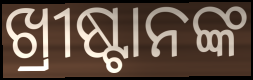
ଖ୍ରୀଷ୍ଟାନଙ୍କ